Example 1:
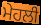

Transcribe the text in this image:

ਮੇਹਲੀ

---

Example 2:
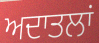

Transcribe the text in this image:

ਅਦਾਤਲਾਂ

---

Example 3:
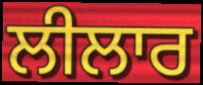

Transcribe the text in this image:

ਲੀਲਾਰ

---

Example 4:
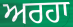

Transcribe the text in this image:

ਅਰਹਾ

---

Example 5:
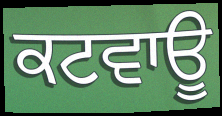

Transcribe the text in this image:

ਕਟਵਾਊ